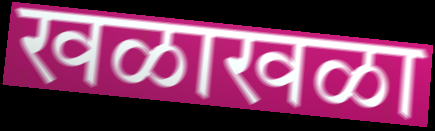
खळाखळा